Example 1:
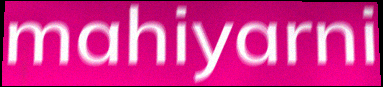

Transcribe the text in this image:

mahiyarni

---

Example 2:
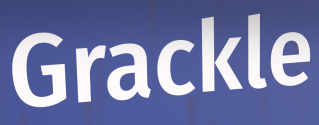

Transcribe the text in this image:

Grackle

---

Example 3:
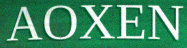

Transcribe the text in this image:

AOXEN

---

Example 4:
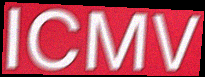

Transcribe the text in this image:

ICMV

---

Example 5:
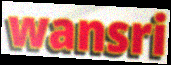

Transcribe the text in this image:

wansri